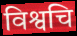
विश्वचि